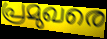
പ്രമുഖരെ